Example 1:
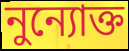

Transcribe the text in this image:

নুন্যোক্ত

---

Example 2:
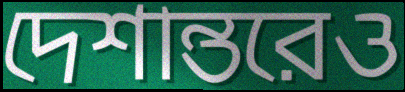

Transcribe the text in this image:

দেশান্তরেও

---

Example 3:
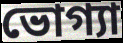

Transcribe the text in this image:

ভোগ্যা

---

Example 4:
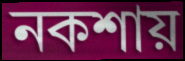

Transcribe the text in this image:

নকশায়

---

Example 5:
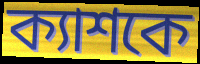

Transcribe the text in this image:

ক্যাশকে